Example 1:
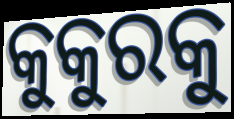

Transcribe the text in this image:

କୁକୁରକୁ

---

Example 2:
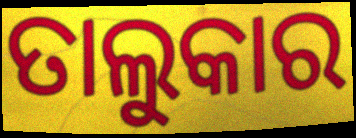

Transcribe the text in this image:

ତାଲୁକାର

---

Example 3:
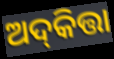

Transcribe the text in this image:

ଅଦ୍‌କିତ୍ତା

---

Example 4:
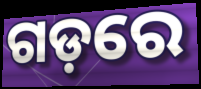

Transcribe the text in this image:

ଗଡ଼ରେ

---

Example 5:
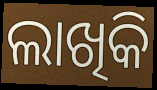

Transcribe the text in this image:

ଲାଖିକି